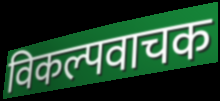
विकल्पवाचक